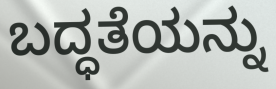
ಬದ್ಧತೆಯನ್ನು